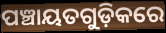
ପଞ୍ଚାୟତଗୁଡ଼ିକରେ